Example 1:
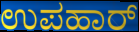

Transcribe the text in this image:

ಉಪಹಾರ್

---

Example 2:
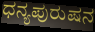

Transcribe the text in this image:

ಧನ್ಯಪುರುಷನ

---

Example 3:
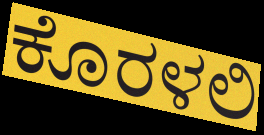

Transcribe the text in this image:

ಕೊರಳಲಿ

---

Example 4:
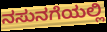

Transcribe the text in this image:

ನಸುನಗೆಯಲ್ಲಿ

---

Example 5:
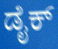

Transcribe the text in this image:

ಡೈಕ್